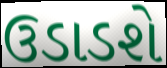
ઉડાડશે